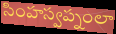
సింహస్వప్నంలా